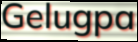
Gelugpa